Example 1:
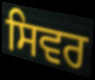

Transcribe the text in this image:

ਸਿਵਰ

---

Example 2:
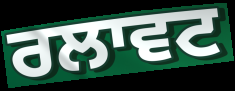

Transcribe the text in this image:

ਰਲਾਵਟ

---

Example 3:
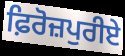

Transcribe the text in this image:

ਫ਼ਿਰੋਜ਼ਪੁਰੀਏ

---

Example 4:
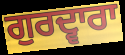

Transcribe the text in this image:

ਗੁਰਦ੍ਵਾਰਾ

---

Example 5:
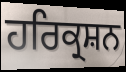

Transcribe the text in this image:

ਹਰਿਕ੍ਰਸ਼ਨ